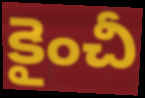
కైంచీ